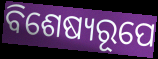
ବିଶେଷ୍ୟରୂପେ